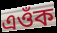
এওঁক